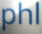
phl